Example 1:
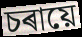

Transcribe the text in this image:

চৰায়ে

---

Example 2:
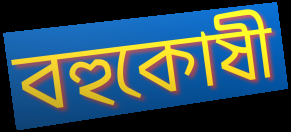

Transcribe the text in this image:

বহুকোষী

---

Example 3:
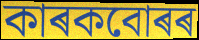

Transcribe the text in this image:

কাৰকবোৰৰ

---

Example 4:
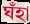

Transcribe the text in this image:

ঘঁহা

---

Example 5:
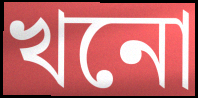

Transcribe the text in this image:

খনো